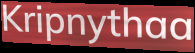
Kripnythaa